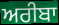
ਅਰੀਬਾ